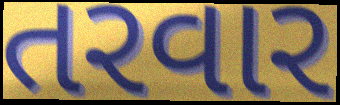
તરવાર